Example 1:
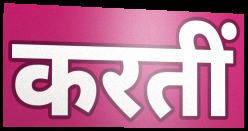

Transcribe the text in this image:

करतीं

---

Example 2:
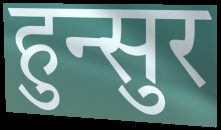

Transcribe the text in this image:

हुन्सुर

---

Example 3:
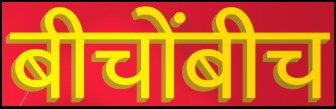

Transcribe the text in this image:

बीचोंबीच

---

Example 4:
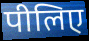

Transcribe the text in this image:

पीलिए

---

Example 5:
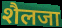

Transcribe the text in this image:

शैलजा